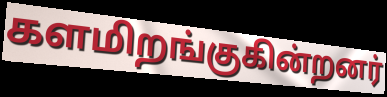
களமிறங்குகின்றனர்